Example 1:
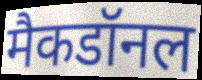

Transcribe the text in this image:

मैकडॉनल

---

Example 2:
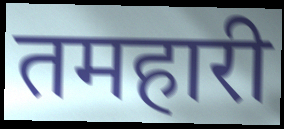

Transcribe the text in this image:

तमहारी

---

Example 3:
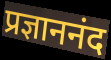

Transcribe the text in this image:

प्रज्ञाननंद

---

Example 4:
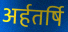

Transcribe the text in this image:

अर्हतर्षि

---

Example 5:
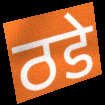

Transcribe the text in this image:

ठडे